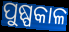
ପୁଷ୍ପକାଳ